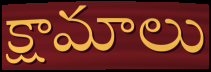
క్షామాలు